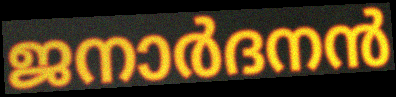
ജനാർദനൻ